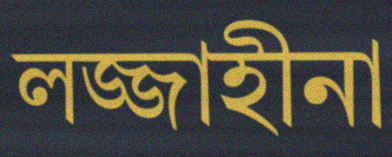
লজ্জাহীনা